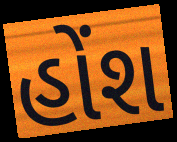
હોંશ